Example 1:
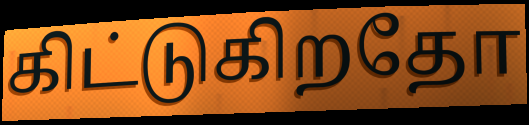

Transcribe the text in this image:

கிட்டுகிறதோ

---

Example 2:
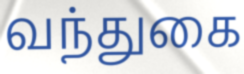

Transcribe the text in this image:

வந்துகை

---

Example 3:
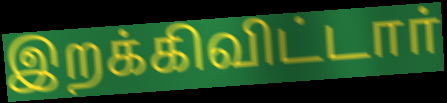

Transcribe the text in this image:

இறக்கிவிட்டார்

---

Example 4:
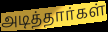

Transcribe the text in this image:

அடித்தார்கள்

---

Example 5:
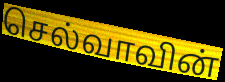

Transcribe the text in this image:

செல்வாவின்